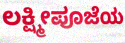
ಲಕ್ಷ್ಮೀಪೂಜೆಯ